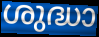
ശുദ്ധാ